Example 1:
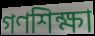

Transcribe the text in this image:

গণশিক্ষা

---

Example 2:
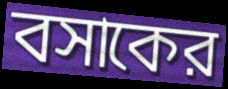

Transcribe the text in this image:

বসাকের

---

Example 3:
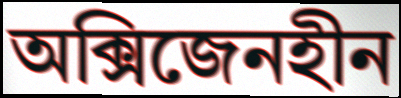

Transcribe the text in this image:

অক্সিজেনহীন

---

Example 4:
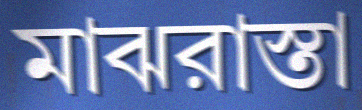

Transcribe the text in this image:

মাঝরাস্তা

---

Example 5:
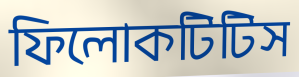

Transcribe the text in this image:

ফিলোকটিটিস